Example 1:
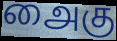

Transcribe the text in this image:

அைகு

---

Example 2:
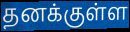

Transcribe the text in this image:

தனக்குள்ள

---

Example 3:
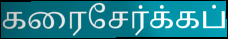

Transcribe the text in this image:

கரைசேர்க்கப்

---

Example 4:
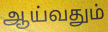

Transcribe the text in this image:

ஆய்வதும்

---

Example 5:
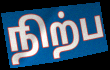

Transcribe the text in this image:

நிற்ப